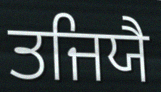
ਤਜਿਯੈ